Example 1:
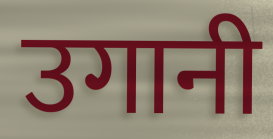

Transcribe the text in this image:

उगानी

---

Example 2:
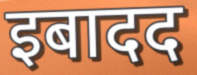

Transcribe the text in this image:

इबादद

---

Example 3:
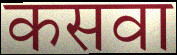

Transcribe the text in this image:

कसवा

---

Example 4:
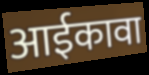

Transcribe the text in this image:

आईकावा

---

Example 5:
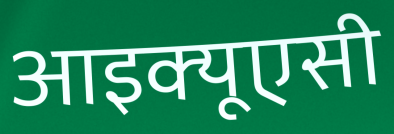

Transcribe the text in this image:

आइक्यूएसी